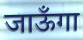
जाऊँगा